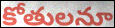
కోతులనూ